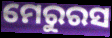
ମେରୁରସ